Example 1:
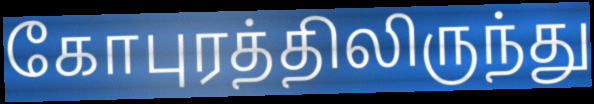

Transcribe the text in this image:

கோபுரத்திலிருந்து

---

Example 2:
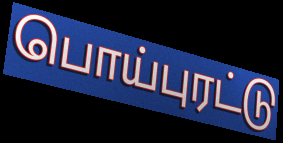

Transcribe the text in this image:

பொய்புரட்டு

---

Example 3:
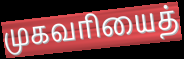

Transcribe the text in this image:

முகவரியைத்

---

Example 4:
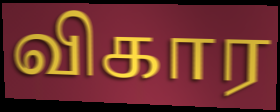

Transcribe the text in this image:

விகார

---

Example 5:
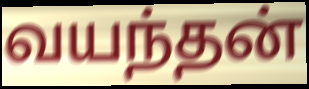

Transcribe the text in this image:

வயந்தன்